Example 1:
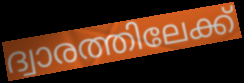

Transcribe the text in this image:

ദ്വാരത്തിലേക്ക്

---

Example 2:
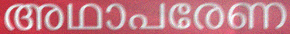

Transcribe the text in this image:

അഥാപരേണ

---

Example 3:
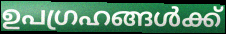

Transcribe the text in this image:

ഉപഗ്രഹങ്ങൾക്ക്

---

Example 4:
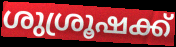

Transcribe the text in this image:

ശുശ്രൂഷക്ക്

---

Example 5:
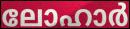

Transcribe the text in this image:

ലോഹാർ